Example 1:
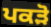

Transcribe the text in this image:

ਪਕੜੋ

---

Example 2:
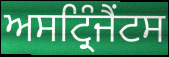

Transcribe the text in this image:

ਅਸਟ੍ਰਿੰਜੈਂਟਸ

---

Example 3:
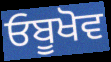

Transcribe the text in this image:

ਓਬੂਖੋਵ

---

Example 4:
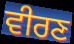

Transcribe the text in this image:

ਵੀਰਣ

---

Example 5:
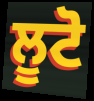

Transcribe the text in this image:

ਲੂਟੋ